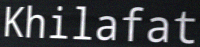
Khilafat